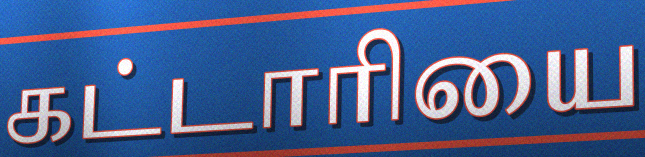
கட்டாரியை